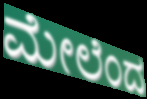
ಮೇಲೆಂದ